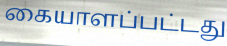
கையாளப்பட்டது